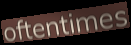
oftentimes